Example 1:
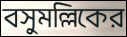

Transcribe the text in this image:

বসুমল্লিকের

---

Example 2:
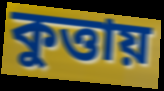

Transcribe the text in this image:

কুত্তায়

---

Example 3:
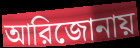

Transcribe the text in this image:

আরিজোনায়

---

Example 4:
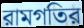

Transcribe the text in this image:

রামগতির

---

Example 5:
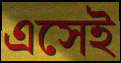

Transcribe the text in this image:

এসেই